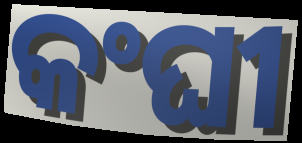
କଂଘୀ